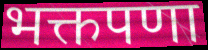
भक्तपणा